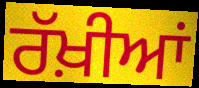
ਰੱਖ਼ੀਆਂ